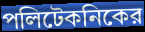
পলিটেকনিকের